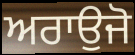
ਅਰਾਉਜੋ